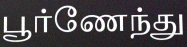
பூர்ணேந்து